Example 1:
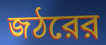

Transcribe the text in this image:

জঠরের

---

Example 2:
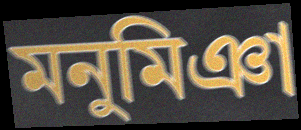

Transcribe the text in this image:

মনুমিঞা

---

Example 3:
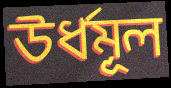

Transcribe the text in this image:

উর্ধমূল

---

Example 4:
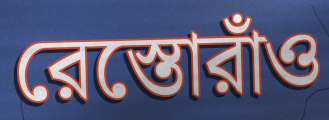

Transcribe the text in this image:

রেস্তোরাঁও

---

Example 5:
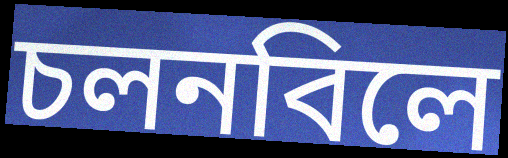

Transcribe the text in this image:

চলনবিলে